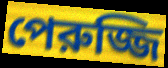
পেরুজ্জি